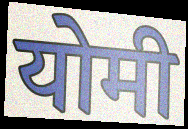
योमी